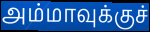
அம்மாவுக்குச்